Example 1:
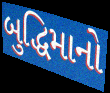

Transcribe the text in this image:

બુદ્ધિમાનો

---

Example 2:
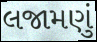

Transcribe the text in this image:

લજામણું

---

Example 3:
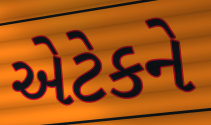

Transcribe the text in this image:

એટેકને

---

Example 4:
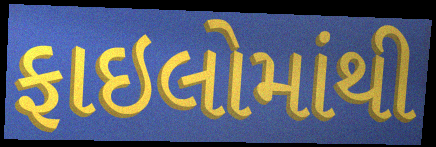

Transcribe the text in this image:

ફાઇલોમાંથી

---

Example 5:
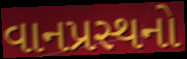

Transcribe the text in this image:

વાનપ્રસ્થનો